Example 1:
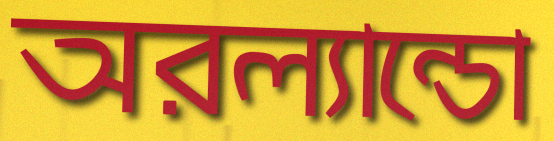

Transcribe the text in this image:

অরল্যান্ডো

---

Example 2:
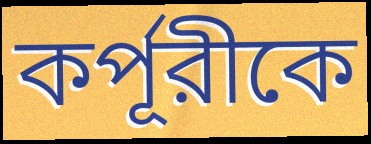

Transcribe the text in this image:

কর্পূরীকে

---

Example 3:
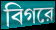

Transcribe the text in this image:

বিগরে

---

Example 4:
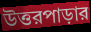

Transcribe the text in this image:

উত্তরপাড়ার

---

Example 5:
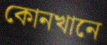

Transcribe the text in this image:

কোনখানে